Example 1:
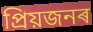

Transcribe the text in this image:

প্ৰিয়জনৰ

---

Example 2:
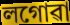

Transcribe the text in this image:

লগোৱা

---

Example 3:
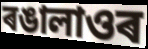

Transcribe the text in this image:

ৰঙালাওৰ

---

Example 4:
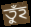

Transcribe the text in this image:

তুঁহ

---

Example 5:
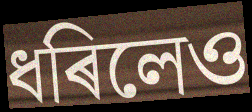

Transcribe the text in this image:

ধৰিলেও